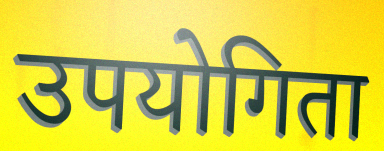
उपयोगिता